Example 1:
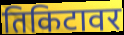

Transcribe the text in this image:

तिकिटावर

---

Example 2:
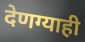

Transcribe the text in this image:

देणग्याही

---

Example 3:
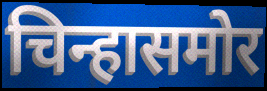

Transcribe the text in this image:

चिन्हासमोर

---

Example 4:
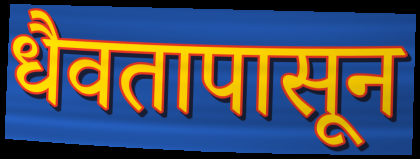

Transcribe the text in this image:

धैवतापासून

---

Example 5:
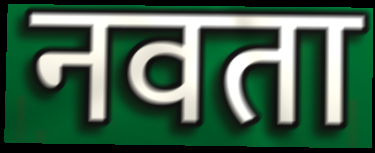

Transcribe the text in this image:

नवता